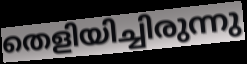
തെളിയിച്ചിരുന്നു